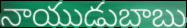
నాయుడుబాబు